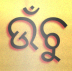
ଉଁଚୁ